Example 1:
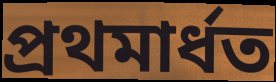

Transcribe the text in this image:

প্ৰথমাৰ্ধত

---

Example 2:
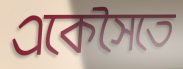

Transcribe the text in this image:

একেসৈতে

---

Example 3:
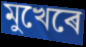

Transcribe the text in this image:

মুখেৰে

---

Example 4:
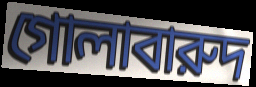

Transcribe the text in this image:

গোলাবাৰুদ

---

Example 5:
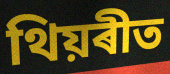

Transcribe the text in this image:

থিয়ৰীত